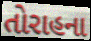
તોરાહના